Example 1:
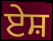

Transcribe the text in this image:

ਏਸ਼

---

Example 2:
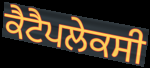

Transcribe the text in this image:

ਕੈਟੈਪਲੇਕਸੀ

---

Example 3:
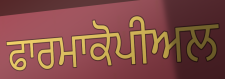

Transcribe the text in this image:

ਫਾਰਮਾਕੋਪੀਅਲ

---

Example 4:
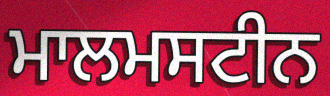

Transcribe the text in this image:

ਮਾਲਮਸਟੀਨ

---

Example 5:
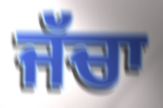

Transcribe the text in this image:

ਜੱਚਾ